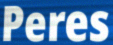
Peres